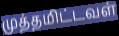
முத்தமிட்டவள்